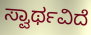
ಸ್ವಾರ್ಥವಿದೆ